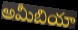
అమీబియా